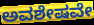
ಅವಶೇಷವೇ